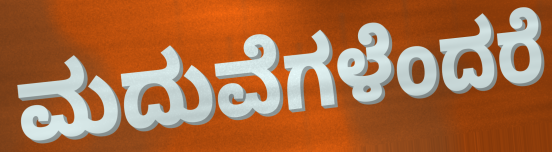
ಮದುವೆಗಳೆಂದರೆ